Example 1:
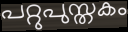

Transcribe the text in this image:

പറ്റുപുസ്തകം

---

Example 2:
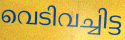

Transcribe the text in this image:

വെടിവച്ചിട്ട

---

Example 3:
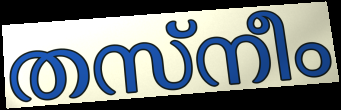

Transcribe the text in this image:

തസ്നീം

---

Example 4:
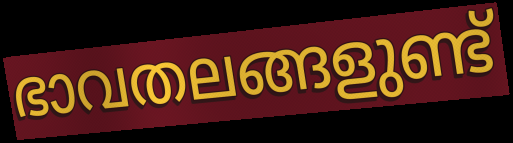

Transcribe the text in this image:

ഭാവതലങ്ങളുണ്ട്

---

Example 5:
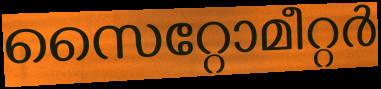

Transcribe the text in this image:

സൈറ്റോമീറ്റർ